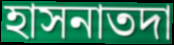
হাসনাতদা